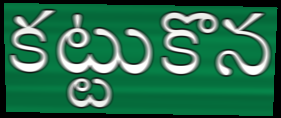
కట్టుకొన